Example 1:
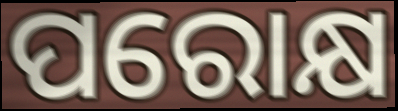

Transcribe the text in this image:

ପରୋକ୍ଷ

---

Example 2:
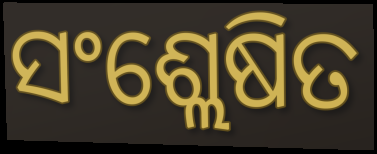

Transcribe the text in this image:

ସଂଶ୍ଲେଷିତ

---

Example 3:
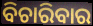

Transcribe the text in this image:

ବିଚାରିବାର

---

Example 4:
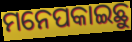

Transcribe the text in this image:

ମନେପକାଇଛୁ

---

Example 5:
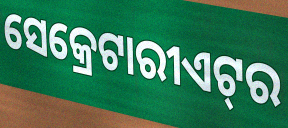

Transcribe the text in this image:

ସେକ୍ରେଟାରୀଏଟ୍‍ର